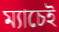
ম্যাচেই